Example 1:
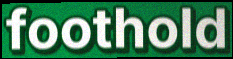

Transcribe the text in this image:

foothold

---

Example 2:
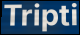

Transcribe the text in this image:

Tripti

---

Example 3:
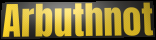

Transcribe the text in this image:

Arbuthnot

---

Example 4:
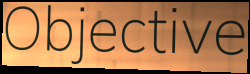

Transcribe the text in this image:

Objective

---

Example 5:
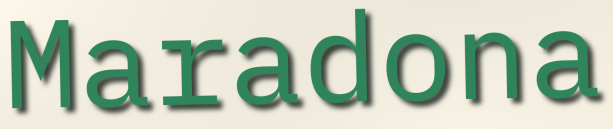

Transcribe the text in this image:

Maradona